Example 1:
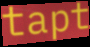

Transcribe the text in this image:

tapt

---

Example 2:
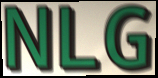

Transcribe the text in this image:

NLG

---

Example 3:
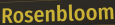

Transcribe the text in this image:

Rosenbloom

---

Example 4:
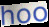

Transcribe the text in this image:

hoo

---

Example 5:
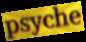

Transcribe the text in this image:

psyche